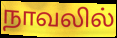
நாவலில்